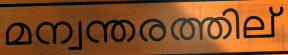
മന്വന്തരത്തില്